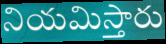
నియమిస్తారు